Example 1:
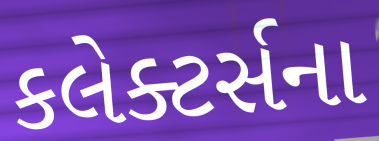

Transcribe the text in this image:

કલેક્ટર્સના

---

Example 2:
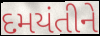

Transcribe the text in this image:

દમયંતીને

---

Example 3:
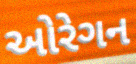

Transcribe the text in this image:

ઓરેગન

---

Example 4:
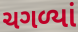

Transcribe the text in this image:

ચગળ્યાં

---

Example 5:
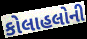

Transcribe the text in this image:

કોલાહલોની